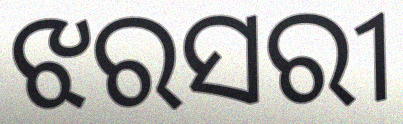
ଝରସରୀ